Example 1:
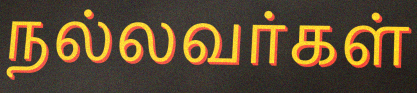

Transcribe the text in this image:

நல்லவர்கள்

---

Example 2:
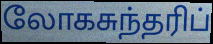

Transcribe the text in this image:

லோகசுந்தரிப்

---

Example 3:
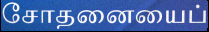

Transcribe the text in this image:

சோதனையைப்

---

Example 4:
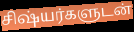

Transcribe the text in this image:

சிஷ்யர்களுடன்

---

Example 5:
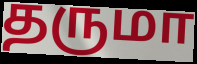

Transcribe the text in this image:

தருமா